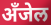
अँजेल